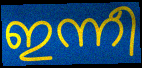
ഇന്നീ